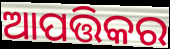
ଆପତ୍ତିକର